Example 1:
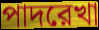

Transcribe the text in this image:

পাদরেখা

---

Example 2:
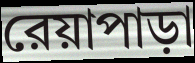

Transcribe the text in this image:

রেয়াপাড়া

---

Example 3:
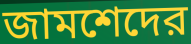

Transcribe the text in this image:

জামশেদের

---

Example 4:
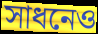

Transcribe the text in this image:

সাধনেও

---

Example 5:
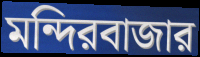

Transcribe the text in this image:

মন্দিরবাজার